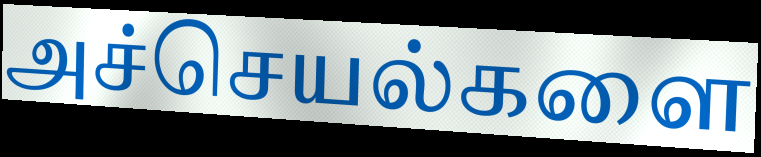
அச்செயல்களை